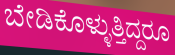
ಬೇಡಿಕೊಳ್ಳುತ್ತಿದ್ದರೂ